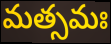
మత్సమః